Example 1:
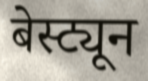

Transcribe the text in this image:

बेस्ट्यून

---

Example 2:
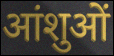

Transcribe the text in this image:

आंशुओं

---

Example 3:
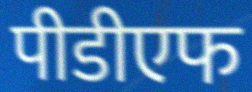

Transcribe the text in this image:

पीडीएफ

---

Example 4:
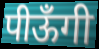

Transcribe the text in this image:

पीऊँगी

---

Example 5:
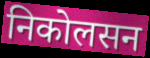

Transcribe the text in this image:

निकोलसन